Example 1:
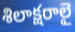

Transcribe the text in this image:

శిలాక్షరాలై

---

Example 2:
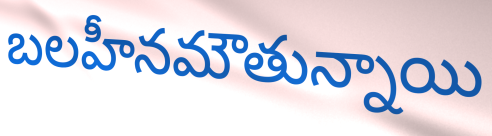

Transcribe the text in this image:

బలహీనమౌతున్నాయి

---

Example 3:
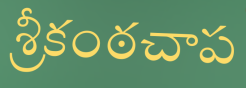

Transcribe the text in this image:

శ్రీకంఠచాప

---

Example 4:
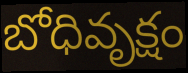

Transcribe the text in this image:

బోధివృక్షం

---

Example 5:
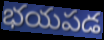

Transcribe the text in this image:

భయపడ